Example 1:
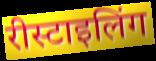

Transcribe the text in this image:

रीस्टाइलिंग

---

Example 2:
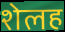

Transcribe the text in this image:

शेलह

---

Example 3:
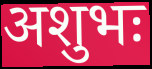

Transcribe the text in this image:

अशुभः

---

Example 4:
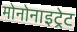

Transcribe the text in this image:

मोनोनाइट्रेट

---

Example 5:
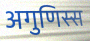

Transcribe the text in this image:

अगुणिस्स